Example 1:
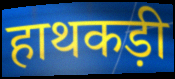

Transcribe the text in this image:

हाथकड़ी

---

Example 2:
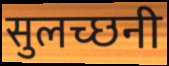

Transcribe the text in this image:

सुलच्छनी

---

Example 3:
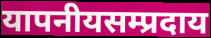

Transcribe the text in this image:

यापनीयसम्प्रदाय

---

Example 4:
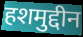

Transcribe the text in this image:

हशमुद्दीन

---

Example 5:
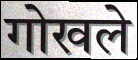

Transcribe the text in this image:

गोखले